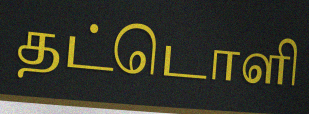
தட்டொளி